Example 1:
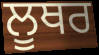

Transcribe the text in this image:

ਲੂਥਰ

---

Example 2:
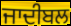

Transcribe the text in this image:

ਜਾਦੀਬਲ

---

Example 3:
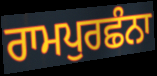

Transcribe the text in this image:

ਰਾਮਪੁਰਛੰਨਾ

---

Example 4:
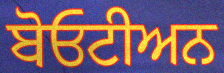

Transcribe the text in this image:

ਬੋਓਟੀਅਨ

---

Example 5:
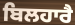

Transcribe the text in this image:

ਬਿਲਹਾਰੈ